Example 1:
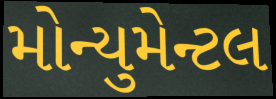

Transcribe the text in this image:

મોન્યુમેન્ટલ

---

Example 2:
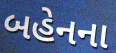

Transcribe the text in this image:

બહેનના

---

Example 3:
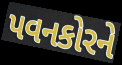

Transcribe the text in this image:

પવનકોરને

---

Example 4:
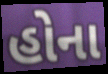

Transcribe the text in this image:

હોના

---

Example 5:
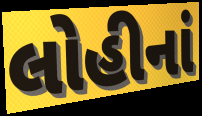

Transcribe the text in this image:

લોહીનાં